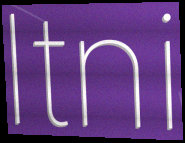
Itni